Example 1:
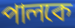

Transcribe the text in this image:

পালকে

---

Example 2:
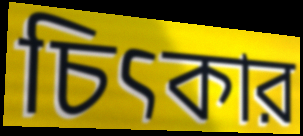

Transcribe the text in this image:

চিৎকার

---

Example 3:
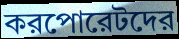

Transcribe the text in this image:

করপোরেটদের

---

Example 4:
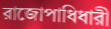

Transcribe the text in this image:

রাজোপাধিধারী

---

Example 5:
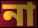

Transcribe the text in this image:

না